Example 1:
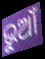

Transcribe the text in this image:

ଭୁଆଁ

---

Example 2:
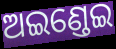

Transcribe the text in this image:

ଅଇଣ୍ଡେଇ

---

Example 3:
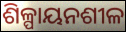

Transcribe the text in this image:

ଶିଳ୍ପାୟନଶୀଳ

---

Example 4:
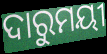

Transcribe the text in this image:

ଦାରୁମୟୀ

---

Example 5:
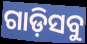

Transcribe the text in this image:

ଗାଡ଼ିସବୁ